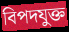
বিপদযুক্ত